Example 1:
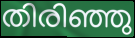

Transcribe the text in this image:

തിരിഞ്ഞു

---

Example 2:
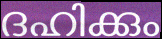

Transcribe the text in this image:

ദഹിക്കും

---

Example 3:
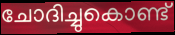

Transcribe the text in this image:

ചോദിച്ചുകൊണ്ട്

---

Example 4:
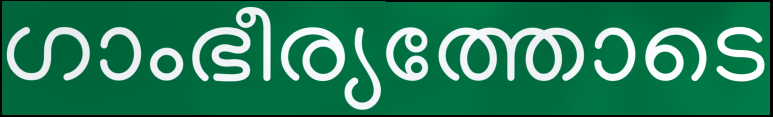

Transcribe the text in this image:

ഗാംഭീര്യത്തോടെ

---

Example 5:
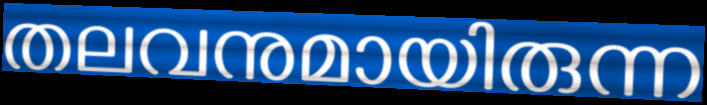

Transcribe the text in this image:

തലവനുമായിരുന്ന